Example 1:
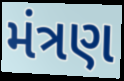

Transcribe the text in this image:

મંત્રણ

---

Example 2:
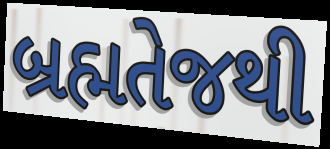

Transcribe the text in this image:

બ્રહ્મતેજથી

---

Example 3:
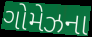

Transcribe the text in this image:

ગોમેઝના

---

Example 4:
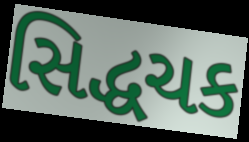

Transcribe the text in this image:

સિદ્ધચક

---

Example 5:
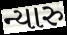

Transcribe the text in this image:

ન્યારુ